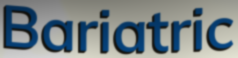
Bariatric